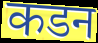
कडन